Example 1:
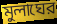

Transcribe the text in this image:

মুলাঘের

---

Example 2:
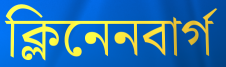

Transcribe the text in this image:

ক্লিনেনবার্গ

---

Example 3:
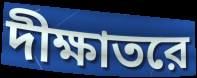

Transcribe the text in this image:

দীক্ষাতরে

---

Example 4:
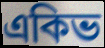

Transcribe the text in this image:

একিভ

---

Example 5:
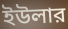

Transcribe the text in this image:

ইউলার